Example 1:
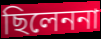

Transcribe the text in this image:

ছিলেননা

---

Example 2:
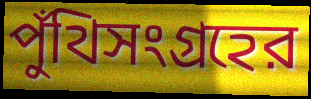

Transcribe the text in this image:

পুঁথিসংগ্রহের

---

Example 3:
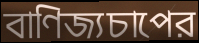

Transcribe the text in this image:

বাণিজ্যচাপের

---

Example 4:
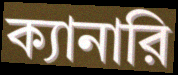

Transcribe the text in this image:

ক্যানারি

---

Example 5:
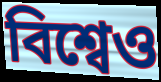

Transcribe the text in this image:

বিশ্বেও